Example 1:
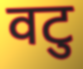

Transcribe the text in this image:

वटु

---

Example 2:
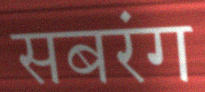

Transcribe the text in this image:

सबरंग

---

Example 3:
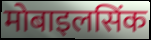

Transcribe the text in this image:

मोबाइलसिंक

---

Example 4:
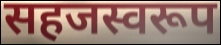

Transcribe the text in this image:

सहजस्वरूप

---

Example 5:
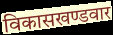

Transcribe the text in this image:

विकासखण्‍डवार